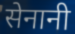
सेनानी